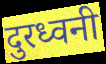
दुरध्वनी